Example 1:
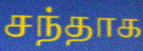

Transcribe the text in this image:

சந்தாக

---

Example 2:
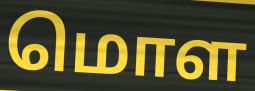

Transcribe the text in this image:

மொள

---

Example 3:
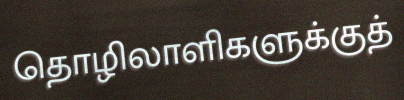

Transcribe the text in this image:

தொழிலாளிகளுக்குத்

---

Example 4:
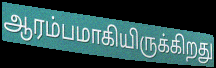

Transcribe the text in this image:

ஆரம்பமாகியிருக்கிறது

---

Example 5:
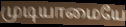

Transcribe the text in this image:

முடியாமையே